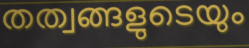
തത്വങ്ങളുടെയും